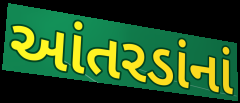
આંતરડાંનાં